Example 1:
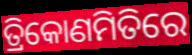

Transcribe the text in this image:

ତ୍ରିକୋଣମିତିରେ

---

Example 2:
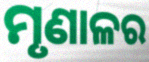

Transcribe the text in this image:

ମୃଣାଳର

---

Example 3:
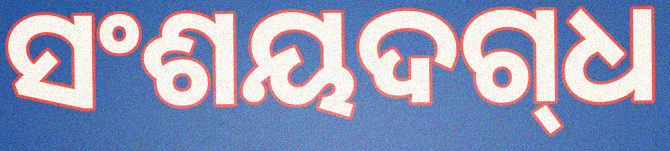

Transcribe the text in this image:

ସଂଶୟଦଗ୍‌ଧ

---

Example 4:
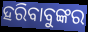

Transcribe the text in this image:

ହରିବାବୁଙ୍କର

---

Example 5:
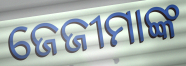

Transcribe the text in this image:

ଜେଜୀମାଙ୍କ